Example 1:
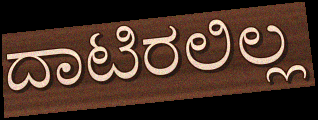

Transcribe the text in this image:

ದಾಟಿರಲಿಲ್ಲ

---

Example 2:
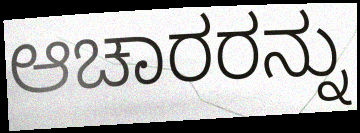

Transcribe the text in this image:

ಆಚಾರರನ್ನು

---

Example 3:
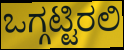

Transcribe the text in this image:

ಒಗ್ಗಟ್ಟಿರಲಿ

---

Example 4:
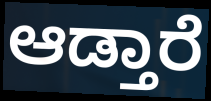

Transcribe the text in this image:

ಆಡ್ತಾರೆ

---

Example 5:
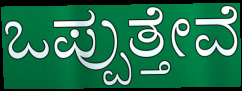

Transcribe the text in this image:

ಒಪ್ಪುತ್ತೇವೆ